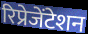
रिप्रेजेंटेशन